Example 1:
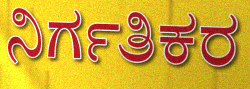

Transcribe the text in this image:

ನಿರ್ಗತಿಕರ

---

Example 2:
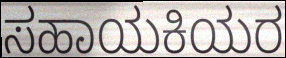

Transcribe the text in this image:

ಸಹಾಯಕಿಯರ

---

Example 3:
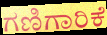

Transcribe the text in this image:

ಗಣಿಗಾರಿಕೆ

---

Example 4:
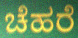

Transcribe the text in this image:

ಚೆಹರೆ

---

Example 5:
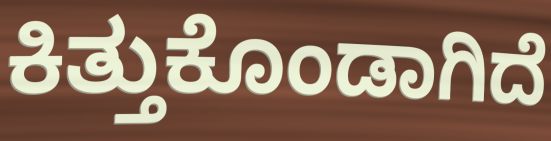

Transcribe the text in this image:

ಕಿತ್ತುಕೊಂಡಾಗಿದೆ